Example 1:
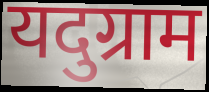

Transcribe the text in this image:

यदुग्राम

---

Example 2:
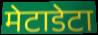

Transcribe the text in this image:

मेटाडेटा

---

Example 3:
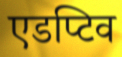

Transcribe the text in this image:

एडप्टिव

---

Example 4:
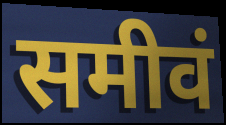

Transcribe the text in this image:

समीवं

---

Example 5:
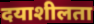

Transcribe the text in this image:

दयाशीलता